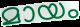
മായം